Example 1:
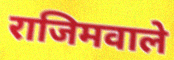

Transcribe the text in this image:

राजिमवाले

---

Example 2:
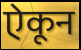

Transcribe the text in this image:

ऐकून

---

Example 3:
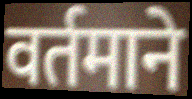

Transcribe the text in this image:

वर्तमाने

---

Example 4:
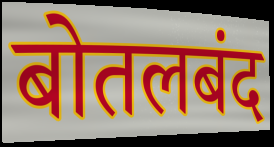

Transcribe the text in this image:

बोतलबंद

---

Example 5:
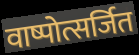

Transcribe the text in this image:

वाष्पोत्सर्जित